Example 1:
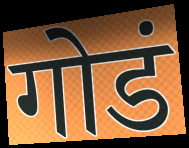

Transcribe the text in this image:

गोडं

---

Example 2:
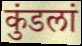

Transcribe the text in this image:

कुंडलां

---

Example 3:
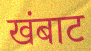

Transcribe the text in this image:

खंबाट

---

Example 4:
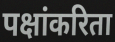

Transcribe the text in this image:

पक्षांकरिता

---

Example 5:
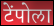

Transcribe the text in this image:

टेंपोला